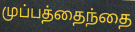
முப்பத்தைந்தை